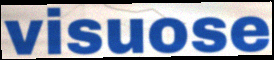
visuose